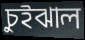
চুইঝাল